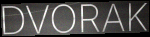
DVORAK